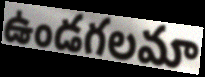
ఉండగలమా